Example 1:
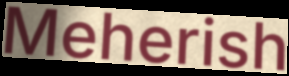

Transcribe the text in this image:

Meherish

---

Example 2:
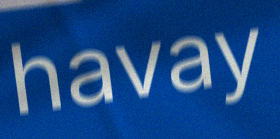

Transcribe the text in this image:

havay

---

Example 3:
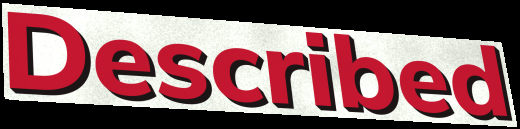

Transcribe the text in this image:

Described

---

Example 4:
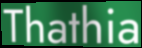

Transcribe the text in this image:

Thathia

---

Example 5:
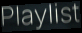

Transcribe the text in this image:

Playlist